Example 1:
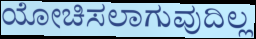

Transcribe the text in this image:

ಯೋಚಿಸಲಾಗುವುದಿಲ್ಲ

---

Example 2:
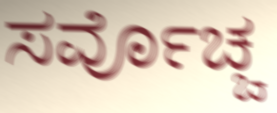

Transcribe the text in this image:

ಸರ್ವೊಚ್ಚ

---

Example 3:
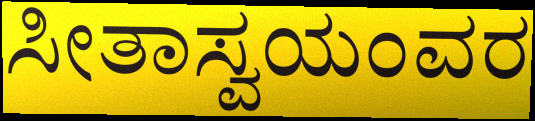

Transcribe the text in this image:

ಸೀತಾಸ್ವಯಂವರ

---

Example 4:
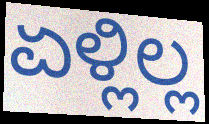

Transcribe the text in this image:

ಏಳ್ಲಿಲ್ಲ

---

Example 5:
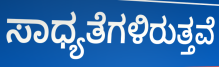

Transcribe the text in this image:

ಸಾಧ್ಯತೆಗಳಿರುತ್ತವೆ